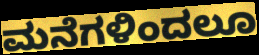
ಮನೆಗಳಿಂದಲೂ